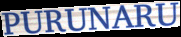
PURUNARU